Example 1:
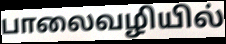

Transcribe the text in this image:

பாலைவழியில்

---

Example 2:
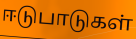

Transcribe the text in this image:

ஈடுபாடுகள்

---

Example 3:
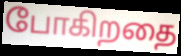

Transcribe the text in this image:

போகிறதை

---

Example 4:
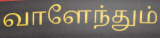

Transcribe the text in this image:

வாளேந்தும்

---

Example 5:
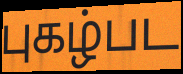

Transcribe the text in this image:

புகழ்பட